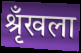
श्रृँखला